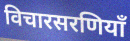
विचारसरणियाँ